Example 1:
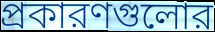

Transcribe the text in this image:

প্রকারণগুলোর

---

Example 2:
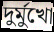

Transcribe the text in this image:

দুর্মুখো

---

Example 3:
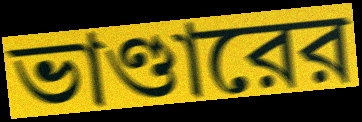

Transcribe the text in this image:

ভাণ্ডারের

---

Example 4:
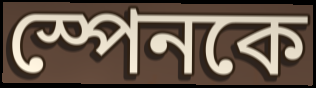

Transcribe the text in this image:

স্পেনকে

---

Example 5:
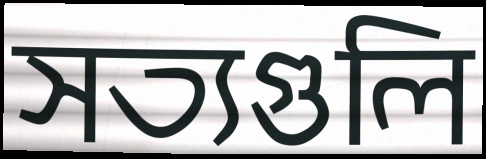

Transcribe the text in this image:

সত্যগুলি